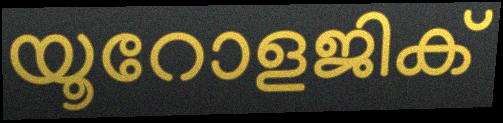
യൂറോളജിക്